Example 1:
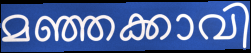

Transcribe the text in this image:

മഞ്ഞക്കാവി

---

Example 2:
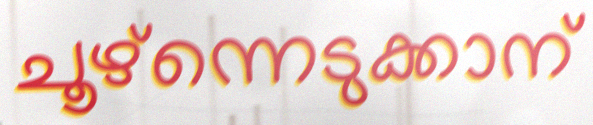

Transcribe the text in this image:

ചൂഴ്ന്നെടുക്കാന്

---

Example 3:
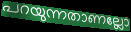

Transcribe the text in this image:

പറയുന്നതാണല്ലോ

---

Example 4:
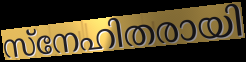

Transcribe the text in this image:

സ്നേഹിതരായി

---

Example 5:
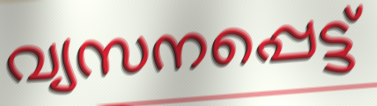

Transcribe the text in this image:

വ്യസനപ്പെട്ട്